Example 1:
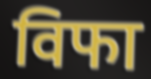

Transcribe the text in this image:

विफा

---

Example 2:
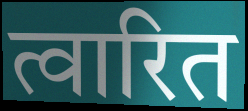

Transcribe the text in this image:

त्वारित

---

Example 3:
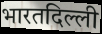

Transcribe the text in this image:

भारतदिल्ली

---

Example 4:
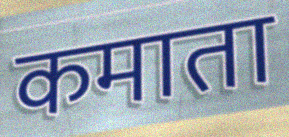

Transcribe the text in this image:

कमाता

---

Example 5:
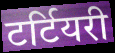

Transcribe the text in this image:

टर्टियरी